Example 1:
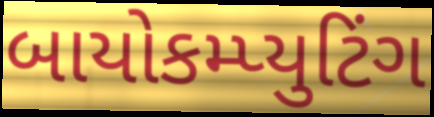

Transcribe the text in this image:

બાયોકમ્પ્યુટિંગ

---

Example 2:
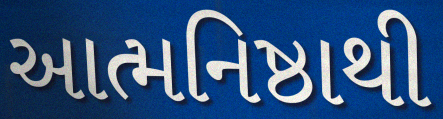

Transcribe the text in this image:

આત્મનિષ્ઠાથી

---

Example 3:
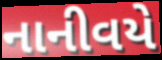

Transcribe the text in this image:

નાનીવયે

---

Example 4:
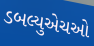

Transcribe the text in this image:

ડબલ્યુએચઓ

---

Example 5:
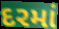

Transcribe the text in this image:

દરમાં